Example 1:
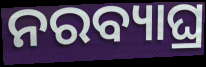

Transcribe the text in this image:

ନରବ୍ୟାଘ୍ର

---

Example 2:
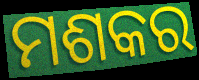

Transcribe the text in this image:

ମଶକର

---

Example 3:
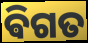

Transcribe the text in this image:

ଵିଗତ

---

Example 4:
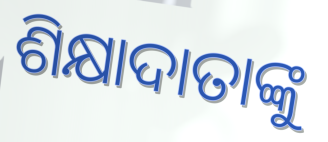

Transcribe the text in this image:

ଶିକ୍ଷାଦାତାଙ୍କୁ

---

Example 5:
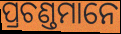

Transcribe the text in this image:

ପ୍ରଚଣ୍ଡମାନେ